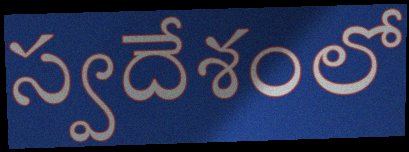
స్వదేశంలో